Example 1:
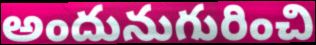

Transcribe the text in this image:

అందునుగురించి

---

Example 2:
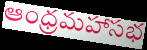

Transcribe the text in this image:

ఆంధ్రమహాసభ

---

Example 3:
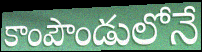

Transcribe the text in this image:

కాంపౌండులోనే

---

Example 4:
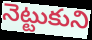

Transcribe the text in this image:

నెట్టుకుని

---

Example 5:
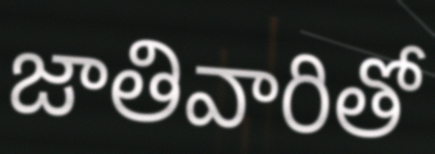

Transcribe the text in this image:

జాతివారితో